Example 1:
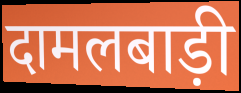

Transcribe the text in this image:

दामलबाड़ी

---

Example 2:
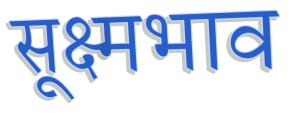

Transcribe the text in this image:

सूक्ष्मभाव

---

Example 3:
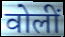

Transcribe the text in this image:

वोलीं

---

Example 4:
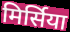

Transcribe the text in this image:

मिर्सिया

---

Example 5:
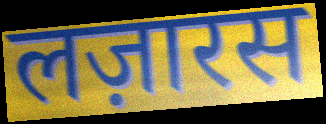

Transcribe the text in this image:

लज़ारस